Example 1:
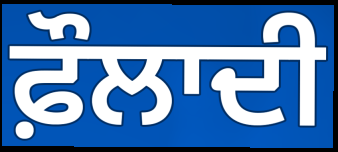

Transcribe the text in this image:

ਫ਼ੌਲਾਦੀ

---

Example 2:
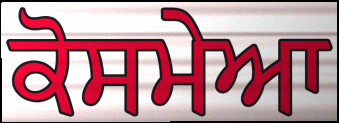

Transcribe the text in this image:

ਕੋਸਮੇਆ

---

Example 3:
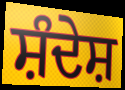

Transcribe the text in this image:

ਸ਼ੰਦੇਸ਼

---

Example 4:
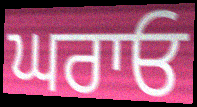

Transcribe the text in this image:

ਘਰਾਓ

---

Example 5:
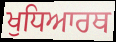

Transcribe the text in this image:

ਖੁਧਿਆਰਥ